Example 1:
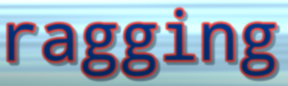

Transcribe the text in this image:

ragging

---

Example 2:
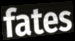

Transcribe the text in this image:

fates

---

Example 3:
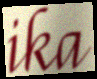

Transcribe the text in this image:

ika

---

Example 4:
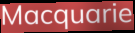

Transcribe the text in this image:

Macquarie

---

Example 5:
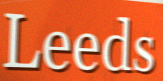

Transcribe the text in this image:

Leeds